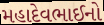
મહાદેવભાઈનો